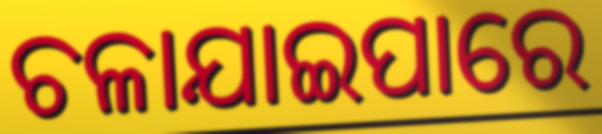
ଚଳାଯାଇପାରେ